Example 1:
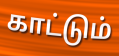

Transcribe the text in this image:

காட்டும்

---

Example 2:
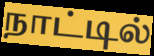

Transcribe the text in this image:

நாட்டில்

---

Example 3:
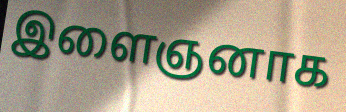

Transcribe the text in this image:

இளைஞனாக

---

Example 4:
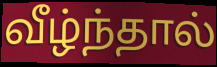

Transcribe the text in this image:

வீழ்ந்தால்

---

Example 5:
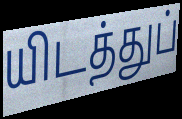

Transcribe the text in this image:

யிடத்துப்